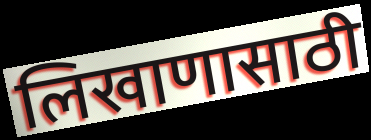
लिखाणासाठी